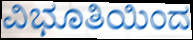
ವಿಭೂತಿಯಿಂದ